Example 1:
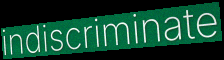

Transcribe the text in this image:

indiscriminate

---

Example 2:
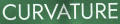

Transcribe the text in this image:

CURVATURE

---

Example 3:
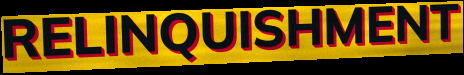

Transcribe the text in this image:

RELINQUISHMENT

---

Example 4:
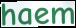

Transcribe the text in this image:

haem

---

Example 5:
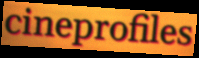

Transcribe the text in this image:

cineprofiles